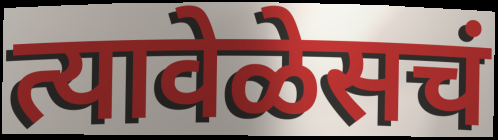
त्यावेळेसचं